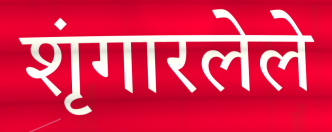
शृंगारलेले